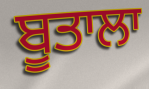
ਬੂਤਾਲਾ